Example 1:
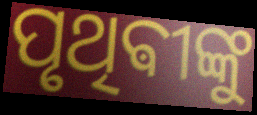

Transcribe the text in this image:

ପୃଥିଵୀଙ୍କୁ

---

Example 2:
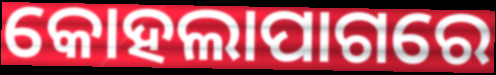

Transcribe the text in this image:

କୋହଲାପାଗରେ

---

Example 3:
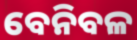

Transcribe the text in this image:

ବେନିବଳ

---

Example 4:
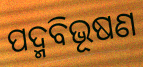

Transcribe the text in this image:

ପଦ୍ମବିଭୂଷଣ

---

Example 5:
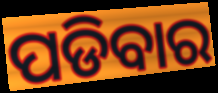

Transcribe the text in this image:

ପଡିବାର